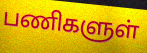
பணிகளுள்